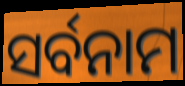
ସର୍ବନାମ